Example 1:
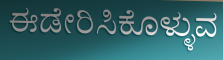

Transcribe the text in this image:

ಈಡೇರಿಸಿಕೊಳ್ಳುವ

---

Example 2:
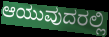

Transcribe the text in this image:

ಆಯುವುದರಲ್ಲಿ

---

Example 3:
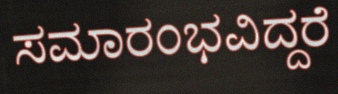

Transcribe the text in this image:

ಸಮಾರಂಭವಿದ್ದರೆ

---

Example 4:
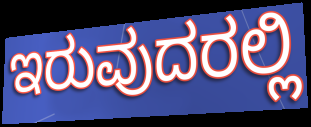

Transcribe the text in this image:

ಇರುವುದರಲ್ಲಿ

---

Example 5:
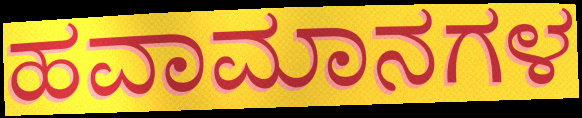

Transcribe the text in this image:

ಹವಾಮಾನಗಳ